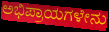
ಅಭಿಪ್ರಾಯಗಳೇನು